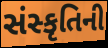
સંસ્કૃતિની